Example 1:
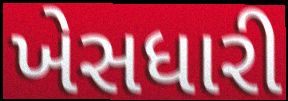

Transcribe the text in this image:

ખેસધારી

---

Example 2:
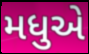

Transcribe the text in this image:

મધુએ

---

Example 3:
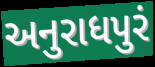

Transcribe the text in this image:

અનુરાધપુરં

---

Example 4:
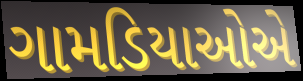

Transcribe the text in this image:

ગામડિયાઓએ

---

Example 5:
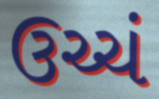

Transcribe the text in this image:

ઉચ્ચં